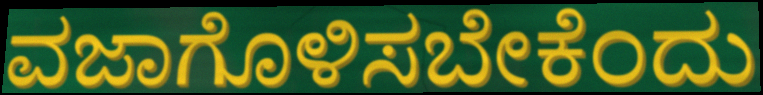
ವಜಾಗೊಳಿಸಬೇಕೆಂದು